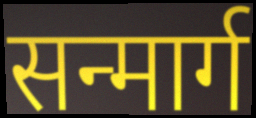
सन्मार्ग